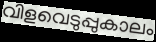
വിളവെടുപ്പുകാലം